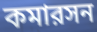
কমারসন